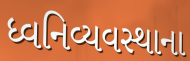
ધ્વનિવ્યવસ્થાના